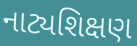
નાટ્યશિક્ષણ